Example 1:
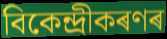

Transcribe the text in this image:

বিকেন্দ্ৰীকৰণৰ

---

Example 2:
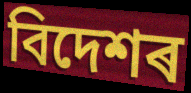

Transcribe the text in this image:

বিদেশৰ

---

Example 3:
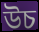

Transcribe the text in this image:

উচ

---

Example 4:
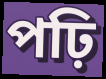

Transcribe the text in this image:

পঢ়ি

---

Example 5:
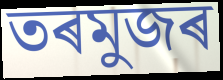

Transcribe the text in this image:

তৰমুজৰ